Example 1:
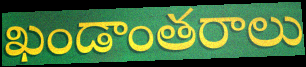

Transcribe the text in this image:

ఖండాంతరాలు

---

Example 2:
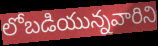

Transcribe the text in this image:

లోబడియున్నవారిని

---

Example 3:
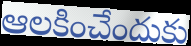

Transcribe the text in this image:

ఆలకించేందుకు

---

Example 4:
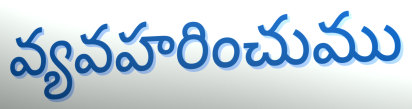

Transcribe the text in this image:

వ్యవహరించుము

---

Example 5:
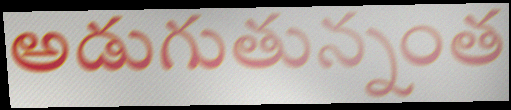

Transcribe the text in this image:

అడుగుతున్నంత